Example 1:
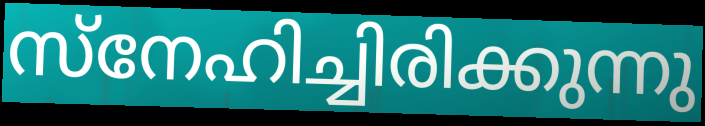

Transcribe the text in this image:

സ്നേഹിച്ചിരിക്കുന്നു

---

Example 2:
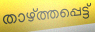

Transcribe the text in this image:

താഴ്ത്തപ്പെട്ട്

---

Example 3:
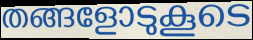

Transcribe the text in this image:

തങ്ങളോടുകൂടെ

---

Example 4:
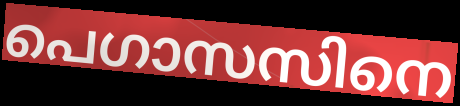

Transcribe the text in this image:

പെഗാസസിനെ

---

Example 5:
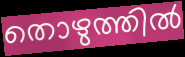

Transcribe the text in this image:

തൊഴുത്തിൽ